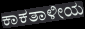
ಕಾಕತಾಳೀಯ